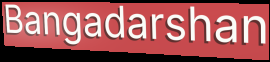
Bangadarshan